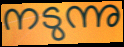
നടുന്നു